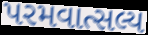
પરમવાત્સલ્ય